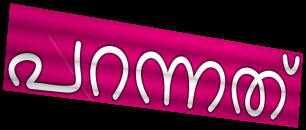
പറന്നത്